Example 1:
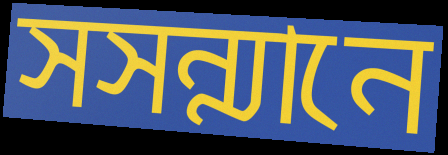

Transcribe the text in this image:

সসন্মানে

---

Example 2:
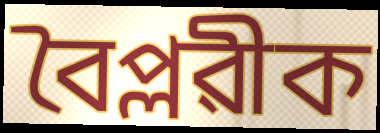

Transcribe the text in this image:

বৈপ্লৱীক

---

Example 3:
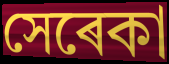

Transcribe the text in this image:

সেৰেকা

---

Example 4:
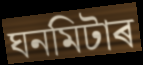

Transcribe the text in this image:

ঘনমিটাৰ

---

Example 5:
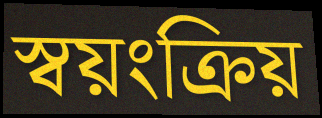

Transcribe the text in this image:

স্বয়ংক্ৰিয়